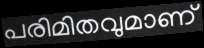
പരിമിതവുമാണ്